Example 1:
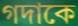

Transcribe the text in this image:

গদাকে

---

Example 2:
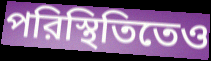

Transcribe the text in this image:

পরিস্থিতিতেও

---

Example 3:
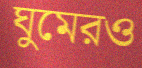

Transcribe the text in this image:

ঘুমেরও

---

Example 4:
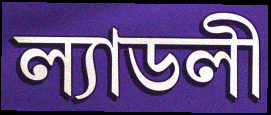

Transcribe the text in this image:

ল্যাডলী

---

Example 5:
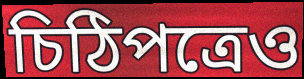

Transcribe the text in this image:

চিঠিপত্রেও